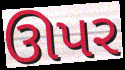
ઊપર